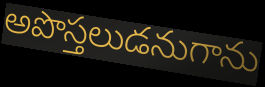
అపొస్తలుడనుగాను